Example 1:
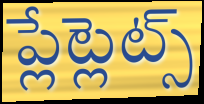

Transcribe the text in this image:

ప్లేట్లెట్స్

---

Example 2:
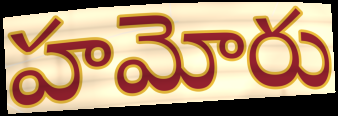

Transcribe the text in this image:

హమోరు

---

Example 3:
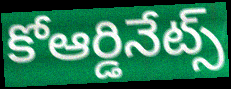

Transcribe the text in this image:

కోఆర్డినేట్స్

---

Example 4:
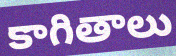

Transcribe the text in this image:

కాగితాలు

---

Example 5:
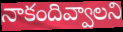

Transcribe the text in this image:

నాకందివ్వాలని